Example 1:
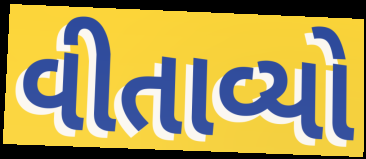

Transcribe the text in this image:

વીતાવ્યો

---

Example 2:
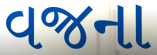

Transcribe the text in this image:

વજ્રના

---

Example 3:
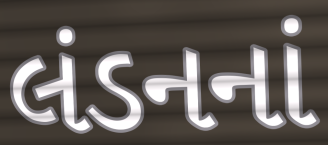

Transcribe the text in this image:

લંડનનાં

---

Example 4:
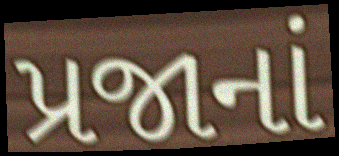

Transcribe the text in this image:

પ્રજાનાં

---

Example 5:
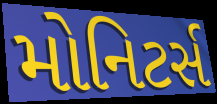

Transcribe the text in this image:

મોનિટર્સ